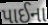
પાઈના